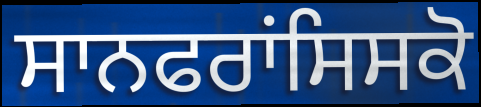
ਸਾਨਫਰਾਂਸਿਸਕੋ